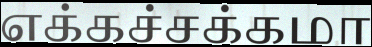
எக்கச்சக்கமா